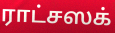
ராட்சஸக்